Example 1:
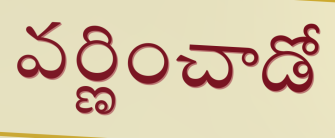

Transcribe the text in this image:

వర్ణించాడో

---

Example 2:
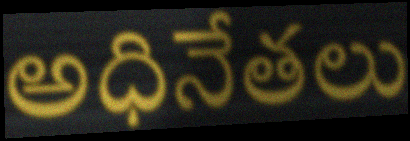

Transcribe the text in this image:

అధినేతలు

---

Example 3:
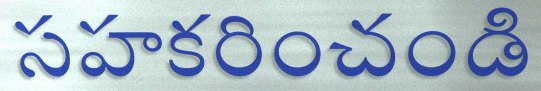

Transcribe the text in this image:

సహకరించండి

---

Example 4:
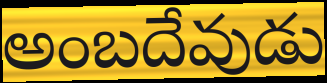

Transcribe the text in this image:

అంబదేవుడు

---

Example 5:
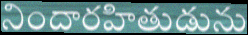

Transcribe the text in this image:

నిందారహితుడును